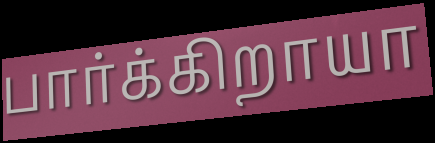
பார்க்கிறாயா